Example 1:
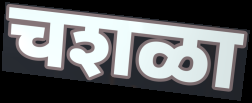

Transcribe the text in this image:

चशळा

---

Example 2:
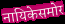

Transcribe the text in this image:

नायिकेसमोर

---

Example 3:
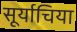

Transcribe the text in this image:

सूर्याचिया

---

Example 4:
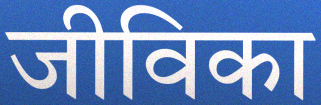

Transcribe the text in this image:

जीविका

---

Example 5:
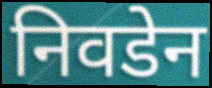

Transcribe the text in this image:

निवडेन